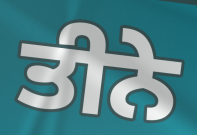
ਤੀਨੇ